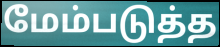
மேம்படுத்த